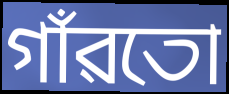
গাঁৱতো